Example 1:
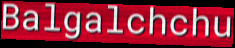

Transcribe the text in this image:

Balgalchchu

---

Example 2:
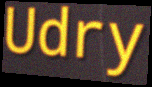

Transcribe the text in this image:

Udry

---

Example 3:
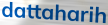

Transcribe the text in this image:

dattaharih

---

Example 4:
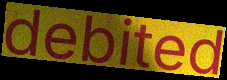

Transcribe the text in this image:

debited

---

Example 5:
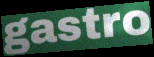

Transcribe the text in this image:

gastro